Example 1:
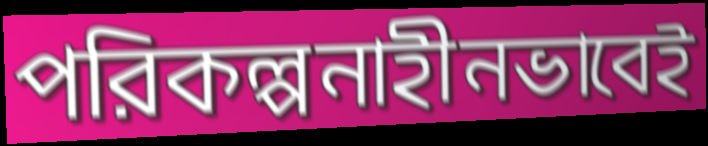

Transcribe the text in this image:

পরিকল্পনাহীনভাবেই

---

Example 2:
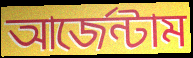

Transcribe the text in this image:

আর্জেন্টাম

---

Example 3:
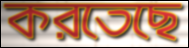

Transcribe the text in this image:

করতেছে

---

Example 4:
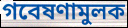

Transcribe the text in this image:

গবেষণামুলক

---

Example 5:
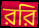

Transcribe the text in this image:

ররি